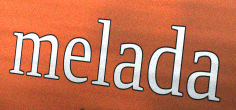
melada